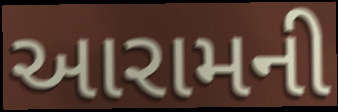
આરામની